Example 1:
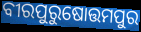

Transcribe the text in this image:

ବୀରପୁରୁଷୋତ୍ତମପୁର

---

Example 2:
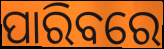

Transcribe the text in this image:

ପାରିବରେ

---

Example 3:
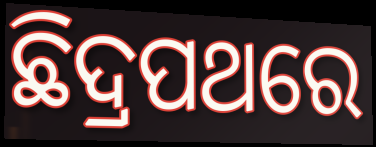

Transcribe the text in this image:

ଛିଦ୍ରପଥରେ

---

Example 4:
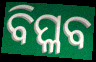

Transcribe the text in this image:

ବିପ୍ଳବ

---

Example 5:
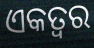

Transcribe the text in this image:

ଏକତ୍ବର